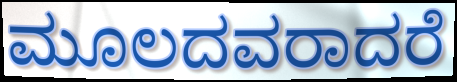
ಮೂಲದವರಾದರೆ